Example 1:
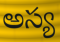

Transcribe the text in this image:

అస్య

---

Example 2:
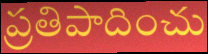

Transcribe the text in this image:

ప్రతిపాదించు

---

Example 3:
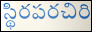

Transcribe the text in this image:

స్థిరపరచిరి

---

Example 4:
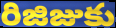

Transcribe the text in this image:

రిజిజుకు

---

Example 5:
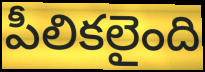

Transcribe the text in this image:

పీలికలైంది